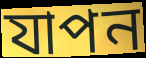
যাপন